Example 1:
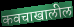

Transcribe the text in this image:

कवचाखालील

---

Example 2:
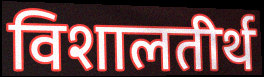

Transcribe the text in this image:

विशालतीर्थ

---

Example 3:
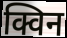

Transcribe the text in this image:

क्विन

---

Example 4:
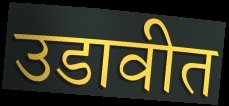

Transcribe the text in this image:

उडावीत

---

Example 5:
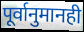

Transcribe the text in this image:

पूर्वानुमानही